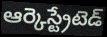
ఆర్కెస్ట్రేటెడ్